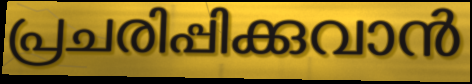
പ്രചരിപ്പിക്കുവാൻ